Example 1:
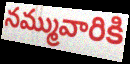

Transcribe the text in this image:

నమ్మువారికి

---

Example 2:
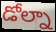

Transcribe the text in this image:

డోల్నా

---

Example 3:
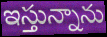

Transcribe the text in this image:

ఇస్తున్నాను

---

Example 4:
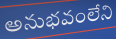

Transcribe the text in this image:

అనుభవంలేని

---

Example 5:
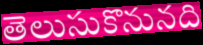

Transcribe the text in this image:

తెలుసుకొనునది